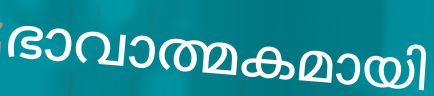
ഭാവാത്മകമായി